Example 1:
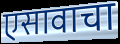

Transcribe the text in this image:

एसावाचा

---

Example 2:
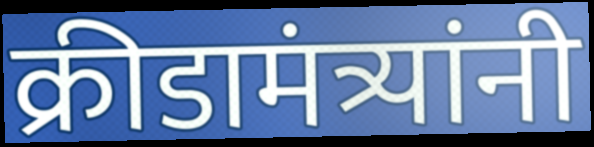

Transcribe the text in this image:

क्रीडामंत्र्यांनी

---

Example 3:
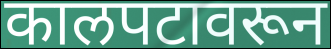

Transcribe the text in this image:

कालपटावरून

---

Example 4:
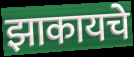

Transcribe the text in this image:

झाकायचे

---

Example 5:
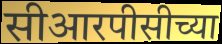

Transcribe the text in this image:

सीआरपीसीच्या